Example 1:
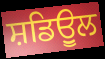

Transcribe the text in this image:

ਸ਼ਡਿਉੂਲ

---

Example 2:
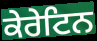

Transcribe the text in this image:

ਕੇਰੇਟਿਨ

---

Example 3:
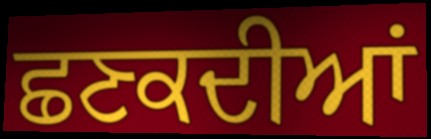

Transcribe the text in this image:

ਛਣਕਦੀਆਂ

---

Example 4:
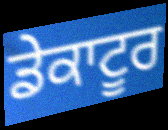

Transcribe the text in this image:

ਡੇਕਾਟੂਰ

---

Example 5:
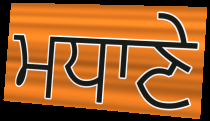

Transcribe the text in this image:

ਮਧਾਣੇ